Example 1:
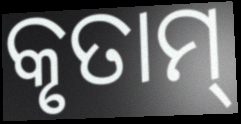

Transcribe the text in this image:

କୃତାମ୍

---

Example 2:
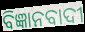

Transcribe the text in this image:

ବିଜ୍ଞାନବାଦୀ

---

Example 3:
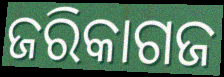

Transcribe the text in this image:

ଜରିକାଗଜ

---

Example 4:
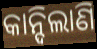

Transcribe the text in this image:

କାନ୍ଦିଲାଣି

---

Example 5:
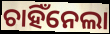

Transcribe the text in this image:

ଚାହିଁନେଲା